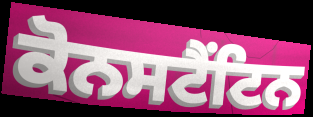
ਕੋਨਸਟੈਂਟਿਨ